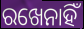
ରଖେନାହିଁ